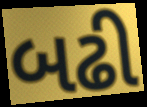
બઢી